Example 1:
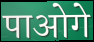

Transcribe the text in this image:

पाओगे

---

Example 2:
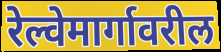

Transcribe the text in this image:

रेल्वेमार्गावरील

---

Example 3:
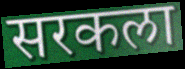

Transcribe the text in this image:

सरकला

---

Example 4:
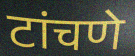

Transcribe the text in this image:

टांचणे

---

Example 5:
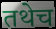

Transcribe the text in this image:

तथेच